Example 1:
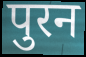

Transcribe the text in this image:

पुरन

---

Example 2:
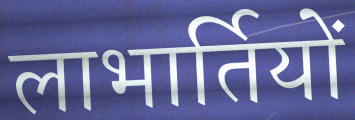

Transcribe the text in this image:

लाभार्तियों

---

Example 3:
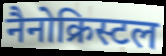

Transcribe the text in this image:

नैनोक्रिस्टल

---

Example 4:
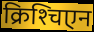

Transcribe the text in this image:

क्रिश्चिएन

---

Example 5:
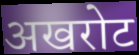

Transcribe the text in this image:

अखरोट